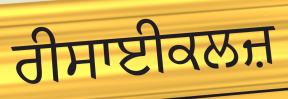
ਰੀਸਾਈਕਲਜ਼